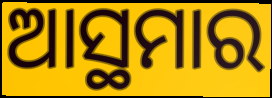
ଆସ୍ଥମାର